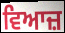
ਵਿਆਜ਼